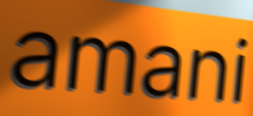
amani